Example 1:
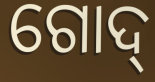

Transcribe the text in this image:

ଗୋଦ୍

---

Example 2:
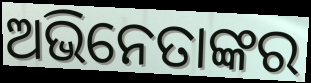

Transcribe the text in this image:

ଅଭିନେତାଙ୍କର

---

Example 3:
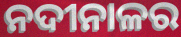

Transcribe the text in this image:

ନଦୀନାଳର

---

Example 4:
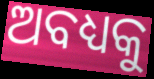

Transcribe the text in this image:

ଅବଧ୍ୟକୁ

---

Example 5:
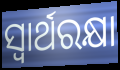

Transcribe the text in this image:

ସ୍ଵାର୍ଥରକ୍ଷା